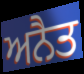
ਅਨੈਤ